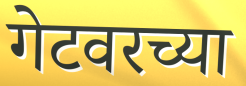
गेटवरच्या